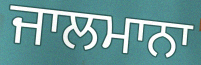
ਜਾਲਮਾਨਾ